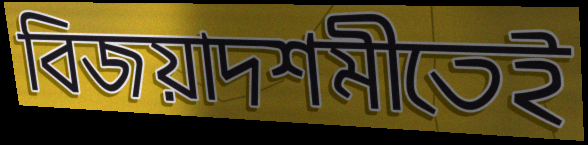
বিজয়াদশমীতেই